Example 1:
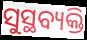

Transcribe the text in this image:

ସୁସ୍ଥବ୍ୟକ୍ତି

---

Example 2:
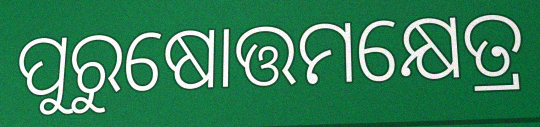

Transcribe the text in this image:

ପୁରୁଷୋତ୍ତମକ୍ଷେତ୍ର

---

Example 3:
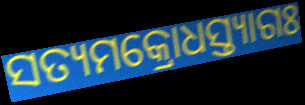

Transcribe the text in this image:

ସତ୍ୟମକ୍ରୋଧସ୍ତ୍ୟାଗଃ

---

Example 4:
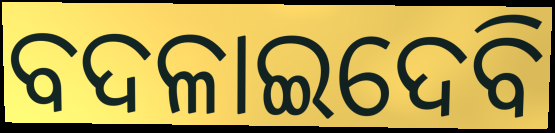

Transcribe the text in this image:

ବଦଳାଇଦେବି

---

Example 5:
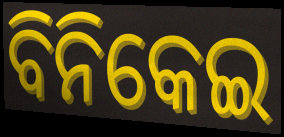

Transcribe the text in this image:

ବିନିକେଇ